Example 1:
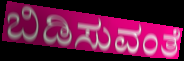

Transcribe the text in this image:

ಬಿಡಿಸುವಂತೆ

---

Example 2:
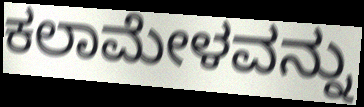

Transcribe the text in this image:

ಕಲಾಮೇಳವನ್ನು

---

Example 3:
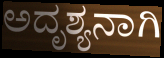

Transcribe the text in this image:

ಅದೃಶ್ಯನಾಗಿ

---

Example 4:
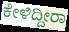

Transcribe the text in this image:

ಕೇಳಿದ್ದೀರಾ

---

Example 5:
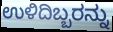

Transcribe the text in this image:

ಉಳಿದಿಬ್ಬರನ್ನು